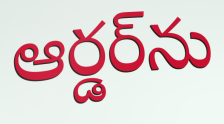
ఆర్డర్‌ను